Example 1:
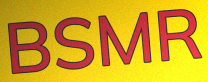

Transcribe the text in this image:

BSMR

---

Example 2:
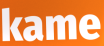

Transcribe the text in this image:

kame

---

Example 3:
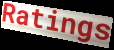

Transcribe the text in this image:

Ratings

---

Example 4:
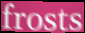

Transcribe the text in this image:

frosts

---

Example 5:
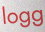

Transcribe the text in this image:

logg